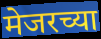
मेजरच्या